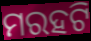
ମରହଟି